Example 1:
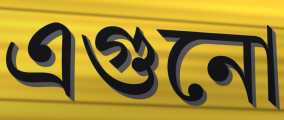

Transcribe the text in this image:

এগুনো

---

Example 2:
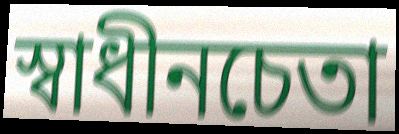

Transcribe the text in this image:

স্বাধীনচেতা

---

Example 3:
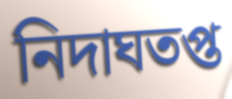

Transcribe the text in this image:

নিদাঘতপ্ত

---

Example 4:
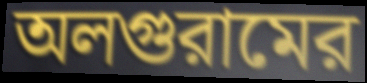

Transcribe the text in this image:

অলগুরামের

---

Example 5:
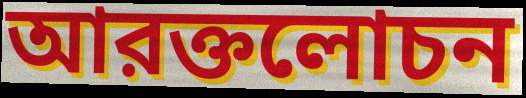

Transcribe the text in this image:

আরক্তলোচন